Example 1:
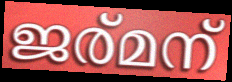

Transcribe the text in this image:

ജര്മന്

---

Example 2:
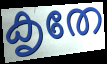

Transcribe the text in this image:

കൃതേ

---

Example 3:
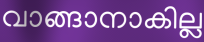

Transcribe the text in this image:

വാങ്ങാനാകില്ല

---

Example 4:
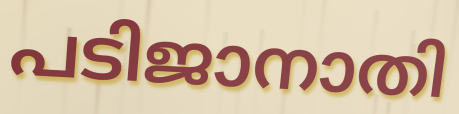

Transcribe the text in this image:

പടിജാനാതി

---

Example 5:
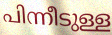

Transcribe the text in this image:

പിന്നീടുള്ള